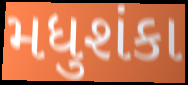
મધુશંકા